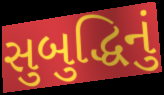
સુબુદ્ધિનું